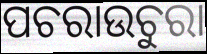
ପଚରାଉଚୁରା